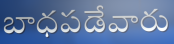
బాధపడేవారు